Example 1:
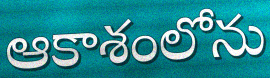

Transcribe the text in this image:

ఆకాశంలోను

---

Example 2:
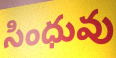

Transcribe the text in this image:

సింధువు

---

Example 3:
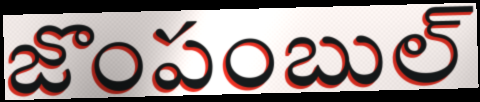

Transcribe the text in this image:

జొంపంబుల్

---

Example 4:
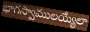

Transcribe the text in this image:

భాగస్వాములయ్యేలా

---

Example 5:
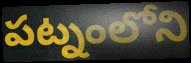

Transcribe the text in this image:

పట్నంలోని